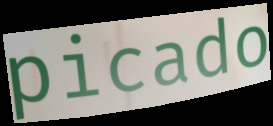
picado